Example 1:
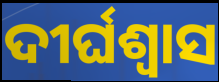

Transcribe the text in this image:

ଦୀର୍ଘଶ୍ବାସ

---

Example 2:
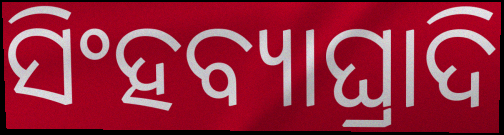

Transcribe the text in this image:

ସିଂହବ୍ୟାଘ୍ରାଦି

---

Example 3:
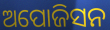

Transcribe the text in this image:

ଅପୋଜିସନ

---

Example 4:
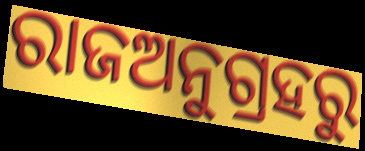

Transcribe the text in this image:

ରାଜଅନୁଗ୍ରହରୁ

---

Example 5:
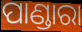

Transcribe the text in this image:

ପାଣ୍ଡାରା